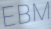
EBM